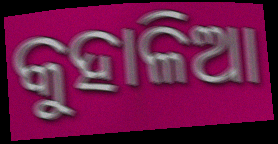
କୁହାଳିଆ